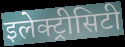
इलेक्ट्रीसिटी